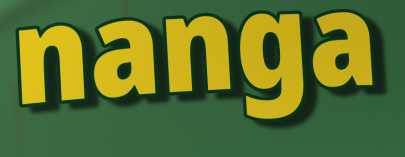
nanga